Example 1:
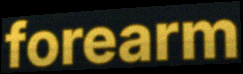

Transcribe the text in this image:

forearm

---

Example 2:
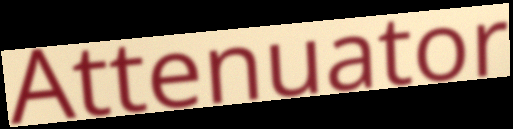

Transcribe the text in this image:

Attenuator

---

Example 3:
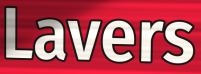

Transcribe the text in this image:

Lavers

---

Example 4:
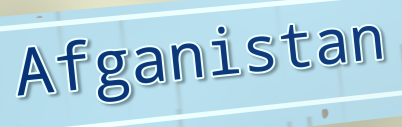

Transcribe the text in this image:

Afganistan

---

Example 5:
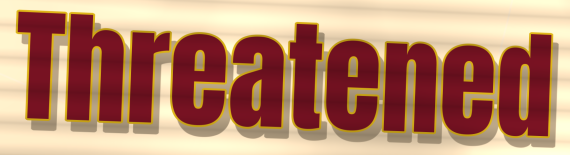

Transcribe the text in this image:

Threatened